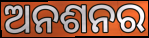
ଅନଶନର